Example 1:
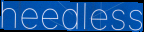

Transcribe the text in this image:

heedless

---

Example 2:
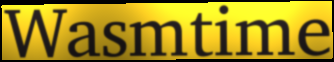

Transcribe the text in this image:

Wasmtime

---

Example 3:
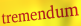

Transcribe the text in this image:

tremendum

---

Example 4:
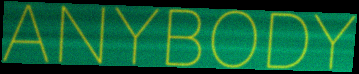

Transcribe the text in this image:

ANYBODY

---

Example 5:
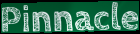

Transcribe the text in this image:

Pinnacle